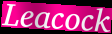
Leacock